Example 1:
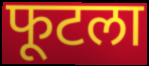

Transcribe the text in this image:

फूटला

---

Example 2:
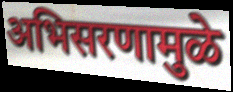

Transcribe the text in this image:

अभिसरणामुळे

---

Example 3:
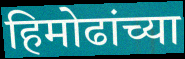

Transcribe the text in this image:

हिमोढांच्या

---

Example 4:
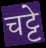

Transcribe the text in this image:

चट्टे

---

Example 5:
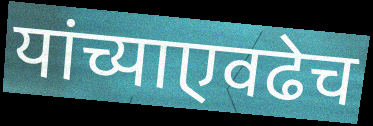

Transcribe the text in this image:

यांच्याएवढेच